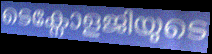
ടെക്നോളജിയുടെ